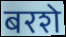
बरशे